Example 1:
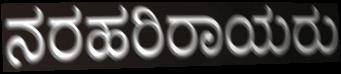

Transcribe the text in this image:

ನರಹರಿರಾಯರು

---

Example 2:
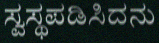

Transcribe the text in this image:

ಸ್ವಸ್ಥಪಡಿಸಿದನು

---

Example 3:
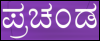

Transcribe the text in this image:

ಪ್ರಚಂಡ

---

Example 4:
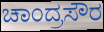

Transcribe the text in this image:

ಚಾಂದ್ರಸೌರ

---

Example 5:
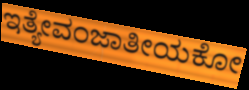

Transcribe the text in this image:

ಇತ್ಯೇವಂಜಾತೀಯಕೋ